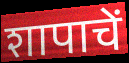
शापाचें